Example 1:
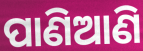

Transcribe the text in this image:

ପାଣିଆଣି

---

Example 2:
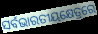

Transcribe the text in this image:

ସର୍ବଭାରତୀୟକ୍ଷେତ୍ରରେ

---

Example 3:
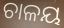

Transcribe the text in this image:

ଚାଳୟ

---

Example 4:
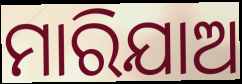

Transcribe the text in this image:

ମାରିଯାଅ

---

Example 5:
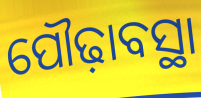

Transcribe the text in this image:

ପୌଢ଼ାବସ୍ଥା